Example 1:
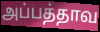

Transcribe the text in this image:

அப்பத்தாவ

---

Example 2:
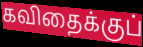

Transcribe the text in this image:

கவிதைக்குப்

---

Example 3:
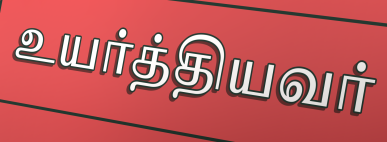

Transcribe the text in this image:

உயர்த்தியவர்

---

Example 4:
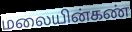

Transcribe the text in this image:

மலையின்கண்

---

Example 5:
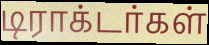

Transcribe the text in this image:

டிராக்டர்கள்